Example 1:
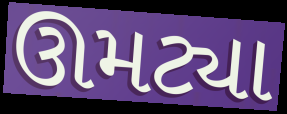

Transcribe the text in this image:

ઊમટ્યા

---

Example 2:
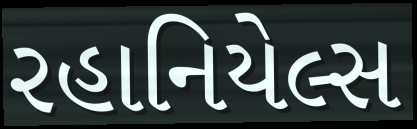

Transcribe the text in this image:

રહાનિયેલ્સ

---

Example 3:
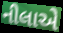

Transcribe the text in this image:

નીલાએ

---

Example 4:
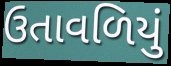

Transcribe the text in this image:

ઉતાવળિયું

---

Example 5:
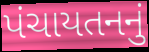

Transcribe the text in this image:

પંચાયતનનું